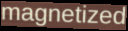
magnetized